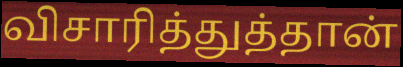
விசாரித்துத்தான்